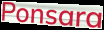
Ponsara